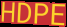
HDPE